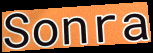
Sonra